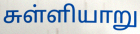
சுள்ளியாறு